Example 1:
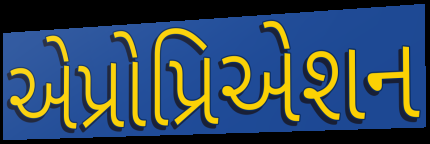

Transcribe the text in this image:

એપ્રોપ્રિએશન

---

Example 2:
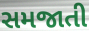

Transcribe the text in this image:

સમજાતી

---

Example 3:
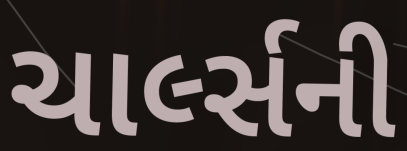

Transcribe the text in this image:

ચાર્લ્સની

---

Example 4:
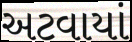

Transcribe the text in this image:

અટવાયાં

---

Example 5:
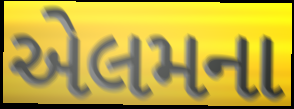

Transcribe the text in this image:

એલમના